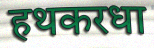
हथकरधा